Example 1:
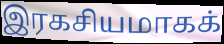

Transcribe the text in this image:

இரகசியமாகக்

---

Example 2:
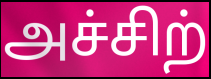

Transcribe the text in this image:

அச்சிற்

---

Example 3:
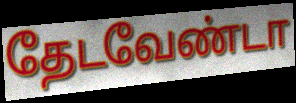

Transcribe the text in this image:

தேடவேண்டா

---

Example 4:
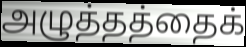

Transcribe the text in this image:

அழுத்தத்தைக்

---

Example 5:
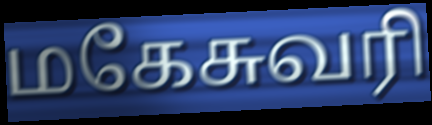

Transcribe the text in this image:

மகேசுவரி